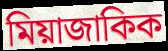
মিয়াজাকিক